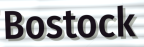
Bostock